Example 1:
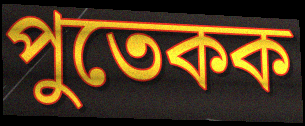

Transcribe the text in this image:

পুতেকক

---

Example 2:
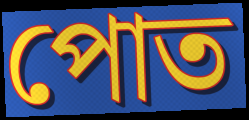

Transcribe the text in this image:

পোত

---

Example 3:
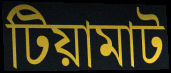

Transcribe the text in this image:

টিয়ামাট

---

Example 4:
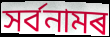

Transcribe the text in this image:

সৰ্বনামৰ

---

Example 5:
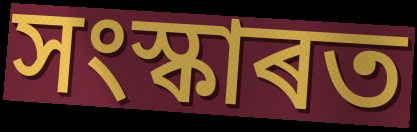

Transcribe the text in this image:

সংস্কাৰত